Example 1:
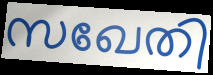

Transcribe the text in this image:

സഖേതി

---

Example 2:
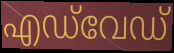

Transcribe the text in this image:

എഡ്‌വേഡ്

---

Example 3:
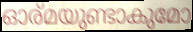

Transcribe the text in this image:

ഓര്മയുണ്ടാകുമോ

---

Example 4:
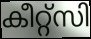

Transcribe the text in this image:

കീറ്റ്സി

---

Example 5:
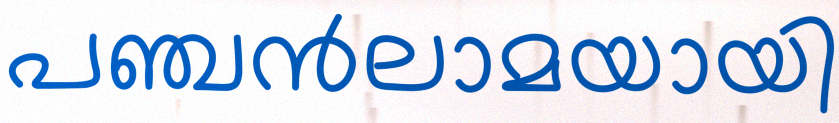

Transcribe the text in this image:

പഞ്ചൻലാമയായി